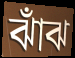
ঝাঁঝ